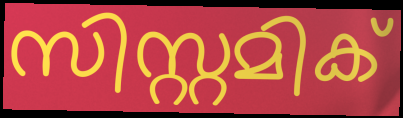
സിസ്റ്റമിക്